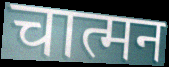
चात्मन